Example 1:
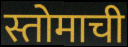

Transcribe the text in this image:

स्तोमाची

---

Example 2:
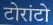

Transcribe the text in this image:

टोरांटो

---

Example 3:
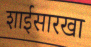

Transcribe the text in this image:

शाईसारखा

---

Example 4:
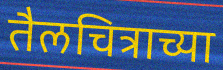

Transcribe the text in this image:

तैलचित्राच्या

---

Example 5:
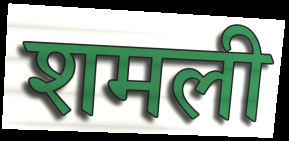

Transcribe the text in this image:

शमली